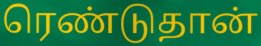
ரெண்டுதான்